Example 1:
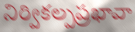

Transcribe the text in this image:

నిర్వికల్పప్రభావా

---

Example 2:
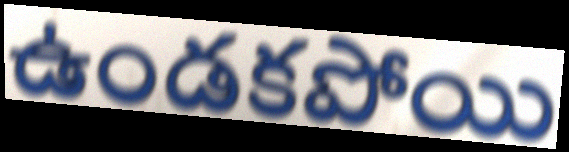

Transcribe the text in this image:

ఉండకపోయి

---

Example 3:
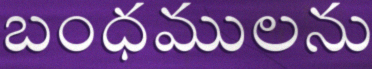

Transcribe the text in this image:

బంధములను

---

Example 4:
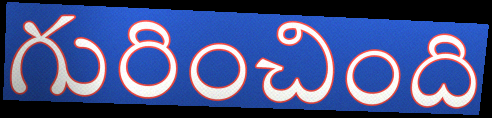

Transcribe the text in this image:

గురించింది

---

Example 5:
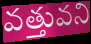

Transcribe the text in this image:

వత్తువని